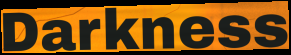
Darkness